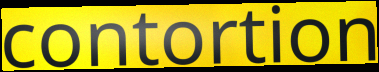
contortion